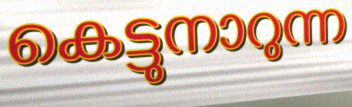
കെട്ടുനാറുന്ന